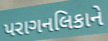
પરાગનલિકાને